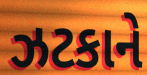
ઝટકાને